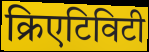
क्रिएटिविटी